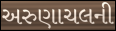
અરુણાચલની